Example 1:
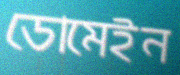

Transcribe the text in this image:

ডোমেইন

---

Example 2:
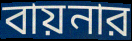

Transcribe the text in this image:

বায়নার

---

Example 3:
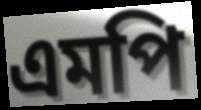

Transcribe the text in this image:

এমপি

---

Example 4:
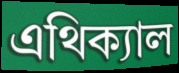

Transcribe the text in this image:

এথিক্যাল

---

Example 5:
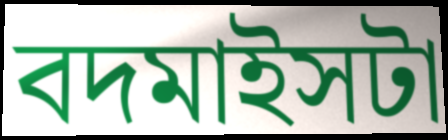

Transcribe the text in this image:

বদমাইসটা